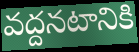
వద్దనటానికి